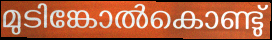
മുടിങ്കോൽകൊണ്ടു്